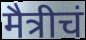
मैत्रीचं